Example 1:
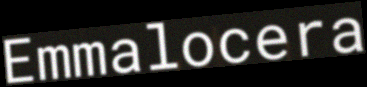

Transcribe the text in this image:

Emmalocera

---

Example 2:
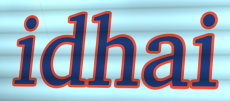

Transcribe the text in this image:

idhai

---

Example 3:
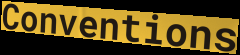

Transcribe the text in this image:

Conventions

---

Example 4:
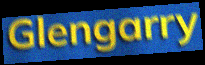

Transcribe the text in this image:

Glengarry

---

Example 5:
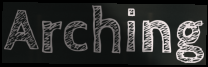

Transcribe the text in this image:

Arching